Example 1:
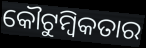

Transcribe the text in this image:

କୌଟୁମ୍ବିକତାର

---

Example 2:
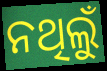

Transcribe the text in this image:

ନଥିଲୁଁ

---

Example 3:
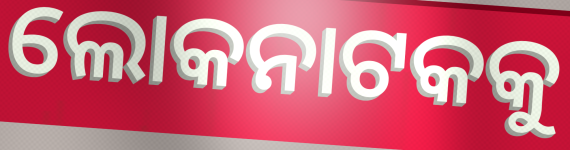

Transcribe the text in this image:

ଲୋକନାଟକକୁ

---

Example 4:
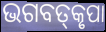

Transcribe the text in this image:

ଭଗବତ୍‌କୃପା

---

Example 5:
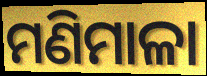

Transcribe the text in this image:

ମଣିମାଳା